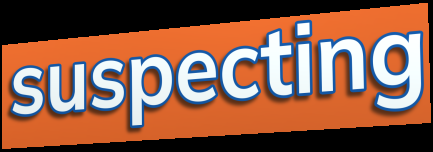
suspecting